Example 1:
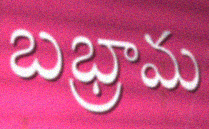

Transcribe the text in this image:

బభ్రామ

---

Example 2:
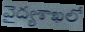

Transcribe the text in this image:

వైద్యశాఖలో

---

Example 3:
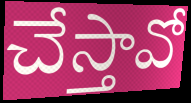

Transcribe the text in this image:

చేస్తావో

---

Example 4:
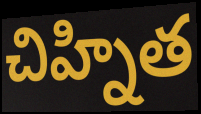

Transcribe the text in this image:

చిహ్నిత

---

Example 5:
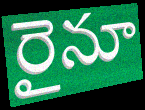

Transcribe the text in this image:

రైనూ